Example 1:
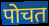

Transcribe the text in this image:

पोचत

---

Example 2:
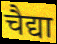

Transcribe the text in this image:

चैद्या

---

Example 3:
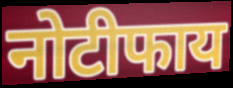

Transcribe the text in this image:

नोटीफाय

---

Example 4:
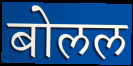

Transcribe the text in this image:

बोलल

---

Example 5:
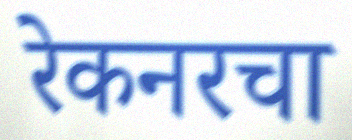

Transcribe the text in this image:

रेकनरचा